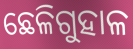
ଛେଳିଗୁହାଳ